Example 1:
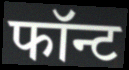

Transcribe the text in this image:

फॉन्ट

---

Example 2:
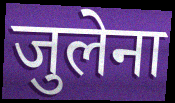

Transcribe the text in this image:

जुलेना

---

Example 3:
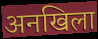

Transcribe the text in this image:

अनखिला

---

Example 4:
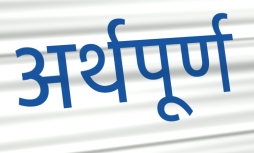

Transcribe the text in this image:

अर्थपूर्ण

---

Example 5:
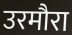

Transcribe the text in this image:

उरमौरा